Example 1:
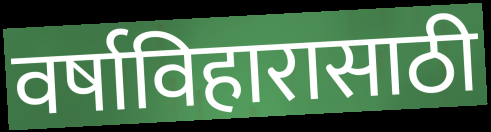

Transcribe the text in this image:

वर्षाविहारासाठी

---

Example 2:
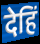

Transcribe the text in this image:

देहिं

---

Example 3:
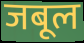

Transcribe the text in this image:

जबूल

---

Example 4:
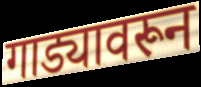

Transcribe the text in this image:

गाड्यावरून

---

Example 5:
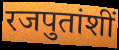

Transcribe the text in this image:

रजपुतांशीं